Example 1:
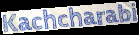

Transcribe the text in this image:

Kachcharabi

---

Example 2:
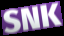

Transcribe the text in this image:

SNK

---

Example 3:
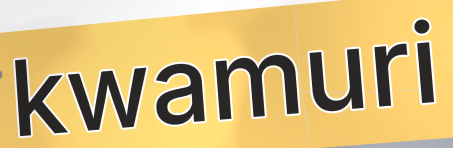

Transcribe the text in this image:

kwamuri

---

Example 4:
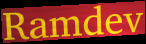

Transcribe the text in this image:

Ramdev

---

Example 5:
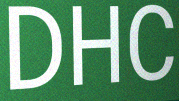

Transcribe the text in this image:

DHC